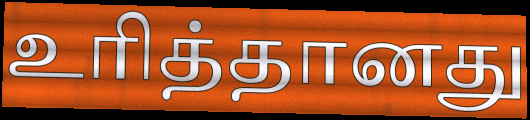
உரித்தானது